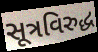
સૂત્રવિરુદ્ધ